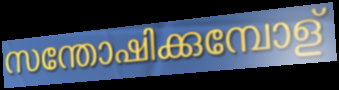
സന്തോഷിക്കുമ്പോള്